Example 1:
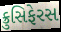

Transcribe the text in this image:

ક્રુસિફેરસ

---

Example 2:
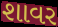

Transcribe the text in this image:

શાવર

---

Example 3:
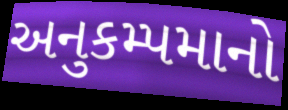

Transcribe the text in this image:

અનુકમ્પમાનો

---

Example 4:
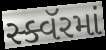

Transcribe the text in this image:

સ્ક્વૅરમાં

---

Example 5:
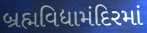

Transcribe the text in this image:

બ્રહ્મવિદ્યામંદિરમાં